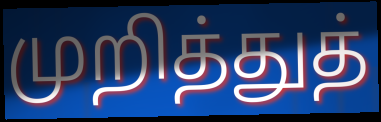
முறித்துத்